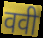
ववी